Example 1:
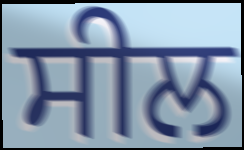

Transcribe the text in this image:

ਸੀਲ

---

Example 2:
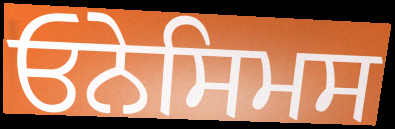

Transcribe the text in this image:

ਓਨੇਸਿਮਸ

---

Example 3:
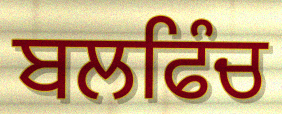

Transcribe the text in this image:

ਬਲਫਿੰਚ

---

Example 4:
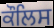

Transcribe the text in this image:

ਕੌਲਿਸ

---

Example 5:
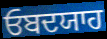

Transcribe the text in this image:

ਓਬਦਯਾਹ